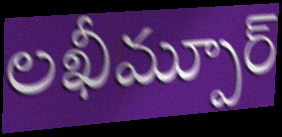
లఖీమ్పూర్